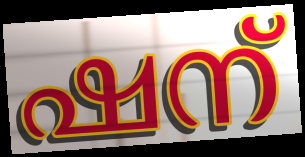
ഷന്